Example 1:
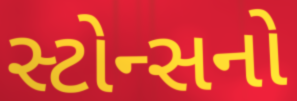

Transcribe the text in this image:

સ્ટોન્સનો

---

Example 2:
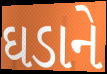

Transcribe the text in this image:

ઘડાને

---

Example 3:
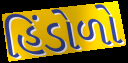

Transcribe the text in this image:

હિંડોળો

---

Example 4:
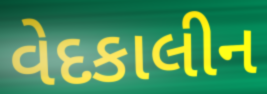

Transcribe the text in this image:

વેદકાલીન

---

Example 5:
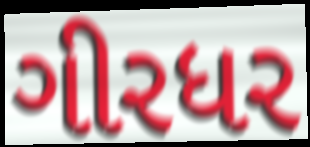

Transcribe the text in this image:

ગીરધર